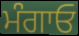
ਮੰਗਾਓ